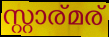
സ്റ്റാര്മര്